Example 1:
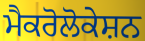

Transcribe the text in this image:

ਮੈਕਰੋਲੋਕੇਸ਼ਨ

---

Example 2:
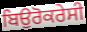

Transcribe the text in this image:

ਬਿਉਰੋਕਰੇਸੀ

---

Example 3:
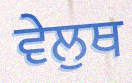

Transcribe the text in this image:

ਵੇਲੁਥ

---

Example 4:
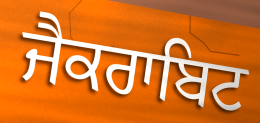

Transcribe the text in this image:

ਜੈਕਰਾਬਿਟ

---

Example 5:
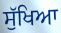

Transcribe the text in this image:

ਸੁੱਖਿਆ